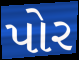
પોર